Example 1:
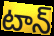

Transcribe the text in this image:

టాన్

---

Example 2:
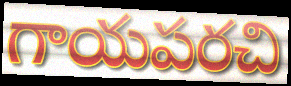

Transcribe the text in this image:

గాయపరచి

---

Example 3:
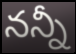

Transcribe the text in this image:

నన్నీ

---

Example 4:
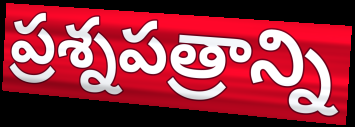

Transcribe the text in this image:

ప్రశ్నపత్రాన్ని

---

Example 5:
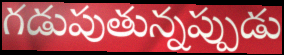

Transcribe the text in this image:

గడుపుతున్నప్పుడు